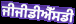
ਜੀਜੀਡੀਐੱਸਡੀ